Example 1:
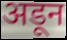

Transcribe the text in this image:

अडून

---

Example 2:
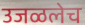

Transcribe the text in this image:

उजळलेच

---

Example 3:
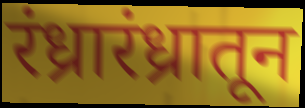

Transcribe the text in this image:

रंध्रारंध्रातून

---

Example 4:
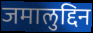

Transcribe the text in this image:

जमालुद्दिन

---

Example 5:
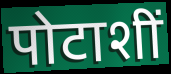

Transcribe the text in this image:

पोटाशीं